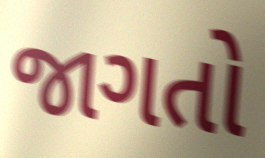
જાગતો